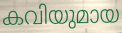
കവിയുമായ